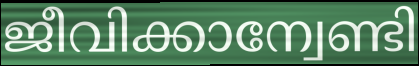
ജീവിക്കാന്വേണ്ടി